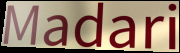
Madari